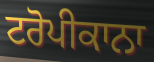
ਟਰੋਪੀਕਾਨਾ